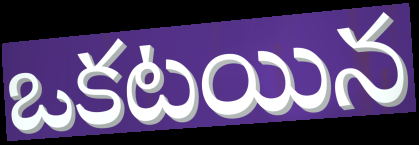
ఒకటయిన